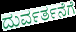
ದುರ್ವರ್ತನೆಗೆ